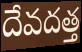
దేవదత్త